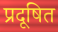
प्रदूषित